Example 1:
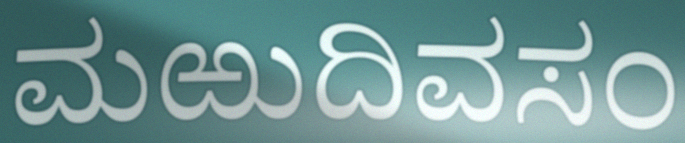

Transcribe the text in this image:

ಮಱುದಿವಸಂ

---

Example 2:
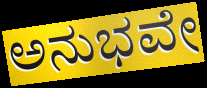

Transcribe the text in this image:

ಅನುಭವೇ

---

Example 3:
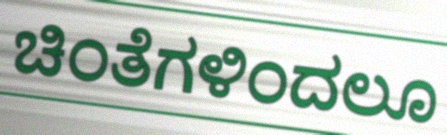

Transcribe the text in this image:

ಚಿಂತೆಗಳಿಂದಲೂ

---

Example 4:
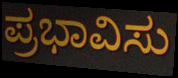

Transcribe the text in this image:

ಪ್ರಭಾವಿಸು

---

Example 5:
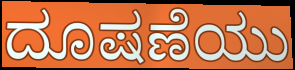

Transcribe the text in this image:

ದೂಷಣೆಯು